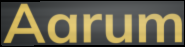
Aarum